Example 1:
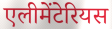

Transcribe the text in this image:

एलीमेंटेरियस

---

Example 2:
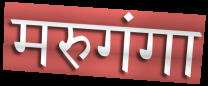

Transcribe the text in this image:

मरुगंगा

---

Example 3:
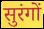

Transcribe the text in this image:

सुरंगों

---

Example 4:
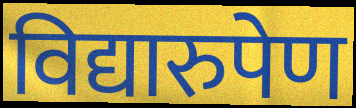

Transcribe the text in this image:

विद्यारुपेण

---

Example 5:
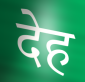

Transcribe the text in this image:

देह